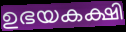
ഉഭയകക്ഷി